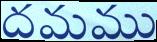
దమము